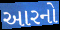
આરનો